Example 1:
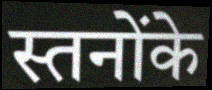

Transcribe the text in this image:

स्तनोंके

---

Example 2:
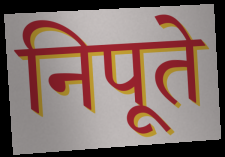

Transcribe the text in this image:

निपूते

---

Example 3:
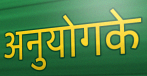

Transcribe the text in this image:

अनुयोगके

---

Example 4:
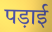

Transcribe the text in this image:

पड़ाई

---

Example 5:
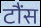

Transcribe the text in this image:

टौंस